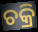
ଚକ୍ରି